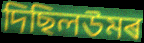
দিছিলউমৰ